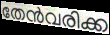
തേൻവരിക്ക